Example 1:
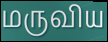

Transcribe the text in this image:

மருவிய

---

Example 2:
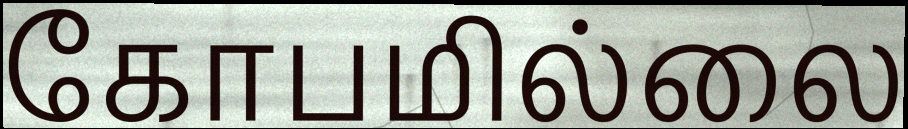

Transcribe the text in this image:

கோபமில்லை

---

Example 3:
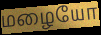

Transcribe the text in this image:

மழையோ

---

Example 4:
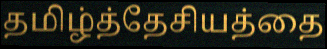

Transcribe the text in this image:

தமிழ்த்தேசியத்தை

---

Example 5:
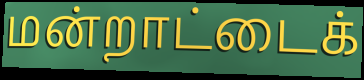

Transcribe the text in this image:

மன்றாட்டைக்